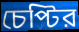
চেপ্টির